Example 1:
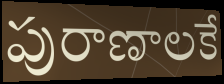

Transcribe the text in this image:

పురాణాలకే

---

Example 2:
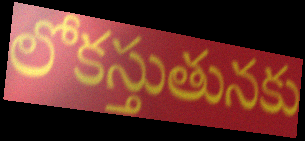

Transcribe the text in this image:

లోకస్తుతునకు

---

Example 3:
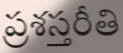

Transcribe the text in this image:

ప్రశస్తరీతి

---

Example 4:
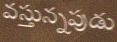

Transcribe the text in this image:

వస్తున్నపుడు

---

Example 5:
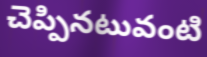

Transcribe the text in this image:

చెప్పినటువంటి